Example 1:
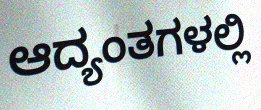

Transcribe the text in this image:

ಆದ್ಯಂತಗಳಲ್ಲಿ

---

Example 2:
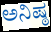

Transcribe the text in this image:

ಅನಿಷ್ಠ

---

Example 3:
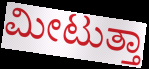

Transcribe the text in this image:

ಮೀಟುತ್ತಾ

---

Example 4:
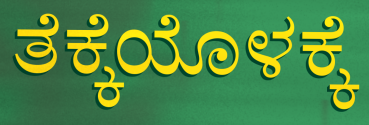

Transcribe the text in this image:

ತೆಕ್ಕೆಯೊಳಕ್ಕೆ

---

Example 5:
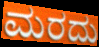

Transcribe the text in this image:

ಮರದು